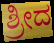
ಶ್ರೀದ